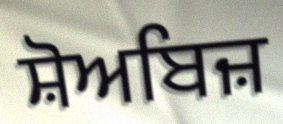
ਸ਼ੋਅਬਿਜ਼